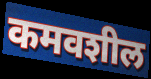
कमवशील